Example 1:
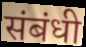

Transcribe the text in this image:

संबंधी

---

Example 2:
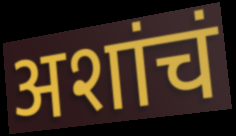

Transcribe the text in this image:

अशांचं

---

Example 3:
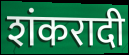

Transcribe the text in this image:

शंकरादी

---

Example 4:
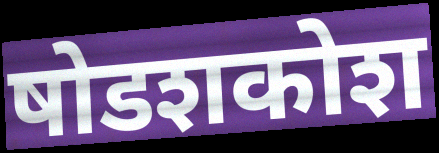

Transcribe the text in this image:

षोडशकोश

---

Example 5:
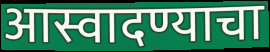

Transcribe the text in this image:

आस्वादण्याचा